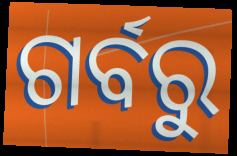
ଗର୍ବରୁ